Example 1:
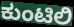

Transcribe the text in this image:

ಕುಂಟಿಲಿ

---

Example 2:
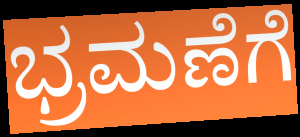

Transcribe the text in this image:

ಭ್ರಮಣೆಗೆ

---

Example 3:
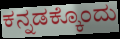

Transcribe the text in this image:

ಕನ್ನಡಕ್ಕೊಂದು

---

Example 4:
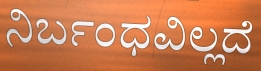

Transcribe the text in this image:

ನಿರ್ಬಂಧವಿಲ್ಲದೆ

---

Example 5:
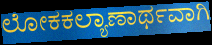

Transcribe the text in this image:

ಲೋಕಕಲ್ಯಾಣಾರ್ಥವಾಗಿ